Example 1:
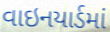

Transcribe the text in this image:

વાઇનયાર્ડમાં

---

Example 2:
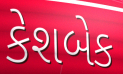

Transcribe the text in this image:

કેશબેક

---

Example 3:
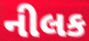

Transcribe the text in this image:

નીલક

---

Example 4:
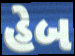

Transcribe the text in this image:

હેબ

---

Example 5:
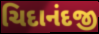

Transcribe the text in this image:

ચિદાનંદજી